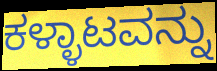
ಕಳ್ಳಾಟವನ್ನು